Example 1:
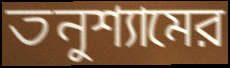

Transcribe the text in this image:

তনুশ্যামের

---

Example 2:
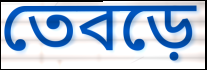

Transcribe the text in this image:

তেবড়ে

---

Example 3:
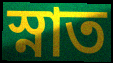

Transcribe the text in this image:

স্নাত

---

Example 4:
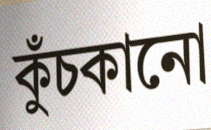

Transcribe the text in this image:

কুঁচকানো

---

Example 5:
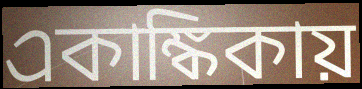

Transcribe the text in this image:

একাঙ্কিকায়